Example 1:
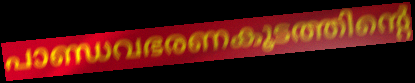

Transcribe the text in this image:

പാണ്ഡവഭരണകൂടത്തിന്റെ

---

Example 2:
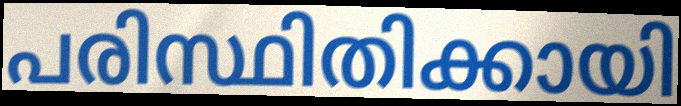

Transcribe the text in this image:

പരിസ്ഥിതിക്കായി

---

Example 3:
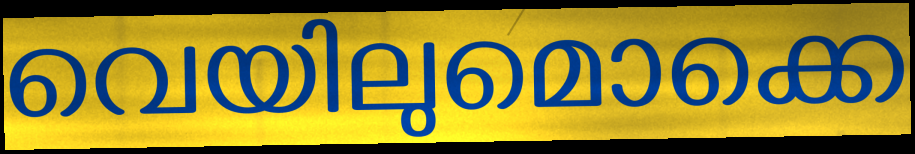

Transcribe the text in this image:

വെയിലുമൊക്കെ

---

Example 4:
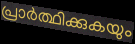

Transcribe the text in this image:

പ്രാർത്ഥിക്കുകയും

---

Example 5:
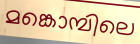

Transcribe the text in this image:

മങ്കൊമ്പിലെ